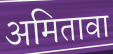
अमितावा